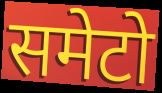
समेटो